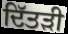
ਦਿੱਤੜੀ